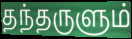
தந்தருளும்